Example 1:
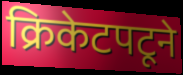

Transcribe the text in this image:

क्रिकेटपटूने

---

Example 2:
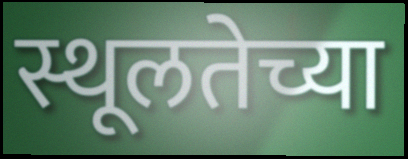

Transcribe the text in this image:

स्थूलतेच्या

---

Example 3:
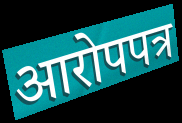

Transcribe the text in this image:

आरोपपत्र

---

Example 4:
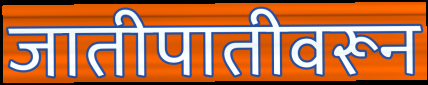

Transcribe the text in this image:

जातीपातीवरून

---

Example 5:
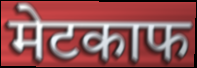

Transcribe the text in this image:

मेटकाफ